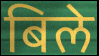
बिले